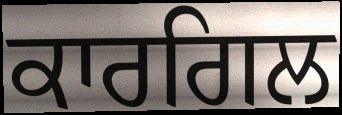
ਕਾਰਗਿਲ